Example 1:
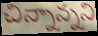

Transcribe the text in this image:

చిన్నాన్నని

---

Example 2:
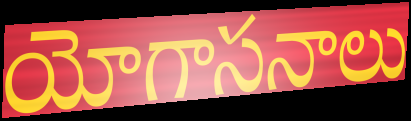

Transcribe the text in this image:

యోగాసనాలు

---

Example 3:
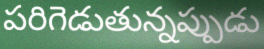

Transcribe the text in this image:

పరిగెడుతున్నప్పుడు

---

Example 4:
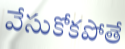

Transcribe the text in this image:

వేసుకోకపోతే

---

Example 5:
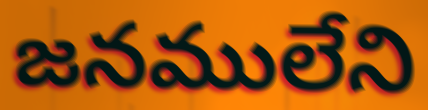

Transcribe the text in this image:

జనములేని